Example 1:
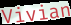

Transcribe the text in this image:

Vivian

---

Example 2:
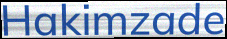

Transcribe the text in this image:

Hakimzade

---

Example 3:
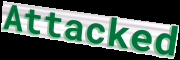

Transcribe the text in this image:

Attacked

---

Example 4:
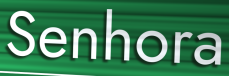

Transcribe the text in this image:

Senhora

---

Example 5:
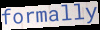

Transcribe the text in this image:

formally